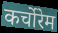
कर्चोरेम